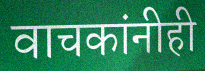
वाचकांनीही